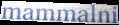
mammalni